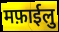
मफ़ाईलु